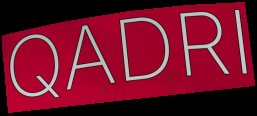
QADRI